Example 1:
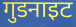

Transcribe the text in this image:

गुडनाइट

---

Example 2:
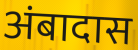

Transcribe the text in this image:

अंबादास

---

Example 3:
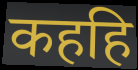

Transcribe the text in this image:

कहहि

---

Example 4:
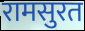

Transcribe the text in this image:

रामसुरत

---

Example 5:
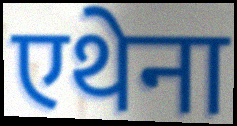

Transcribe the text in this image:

एथेना